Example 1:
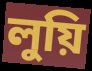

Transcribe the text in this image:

লুয়ি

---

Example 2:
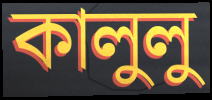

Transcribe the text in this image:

কালুলু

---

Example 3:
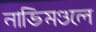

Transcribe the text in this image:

নাভিমণ্ডলে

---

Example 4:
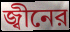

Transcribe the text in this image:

জ্বীনের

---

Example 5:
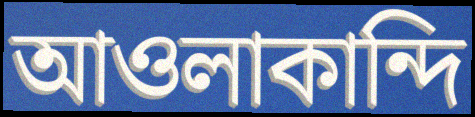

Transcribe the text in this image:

আওলাকান্দি